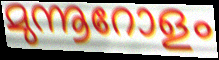
മുന്നൂറോളം